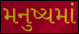
મનુષ્યમાં